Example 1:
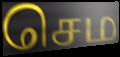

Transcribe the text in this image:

செம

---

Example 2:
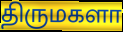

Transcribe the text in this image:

திருமகளா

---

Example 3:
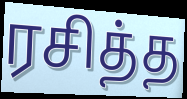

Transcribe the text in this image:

ரசித்த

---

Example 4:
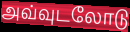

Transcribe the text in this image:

அவ்வுடலோடு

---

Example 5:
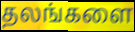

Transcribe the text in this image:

தலங்களை